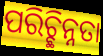
ପରିଚ୍ଛିନ୍ନତା